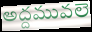
అద్దమువలె